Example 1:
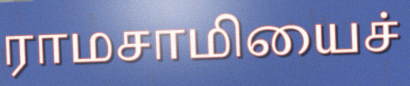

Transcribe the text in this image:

ராமசாமியைச்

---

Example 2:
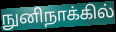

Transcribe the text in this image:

நுனிநாக்கில்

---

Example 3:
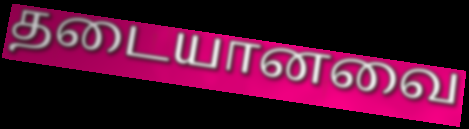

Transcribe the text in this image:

தடையானவை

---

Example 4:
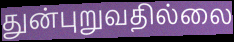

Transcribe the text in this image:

துன்புறுவதில்லை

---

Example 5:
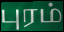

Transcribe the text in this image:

புரம்